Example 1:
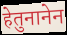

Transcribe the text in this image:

हेतुनानेन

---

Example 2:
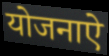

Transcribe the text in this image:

योजनाऐ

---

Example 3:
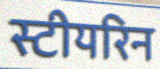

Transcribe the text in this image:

स्टीयरिन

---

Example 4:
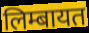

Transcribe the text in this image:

लिम्बायत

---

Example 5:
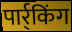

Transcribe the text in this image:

पार्र्किंग